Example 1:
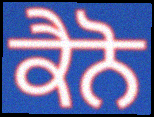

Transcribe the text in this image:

ਕੈਨੋ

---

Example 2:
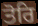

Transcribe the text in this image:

ਤੋਰਿ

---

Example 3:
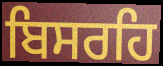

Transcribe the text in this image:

ਬਿਸਰਹਿ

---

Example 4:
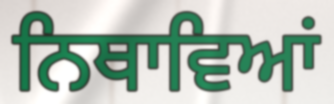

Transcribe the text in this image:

ਨਿਥਾਵਿਆਂ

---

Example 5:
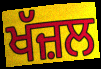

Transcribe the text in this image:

ਖੱਜ਼ਲ